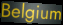
Belgium